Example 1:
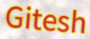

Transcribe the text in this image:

Gitesh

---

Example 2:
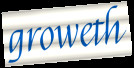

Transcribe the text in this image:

groweth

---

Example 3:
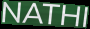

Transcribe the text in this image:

NATHI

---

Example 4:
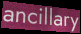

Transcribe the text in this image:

ancillary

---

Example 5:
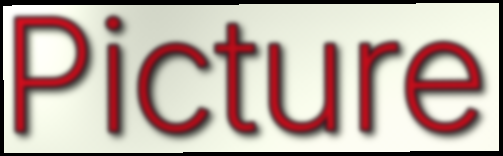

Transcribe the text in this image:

Picture